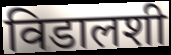
विडालशी